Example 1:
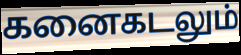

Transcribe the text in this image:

கனைகடலும்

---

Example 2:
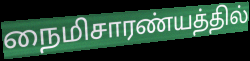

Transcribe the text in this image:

நைமிசாரண்யத்தில்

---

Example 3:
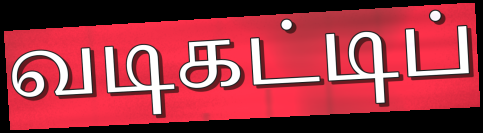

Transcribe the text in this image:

வடிகட்டிப்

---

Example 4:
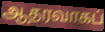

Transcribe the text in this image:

ஆதரவாகப்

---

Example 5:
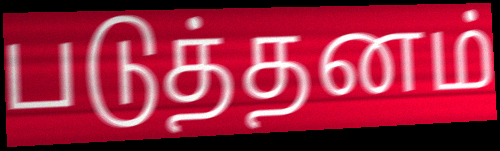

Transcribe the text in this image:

படுத்தனம்